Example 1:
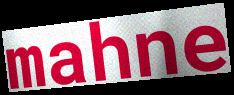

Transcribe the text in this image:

mahne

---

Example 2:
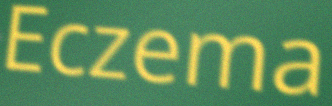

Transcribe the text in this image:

Eczema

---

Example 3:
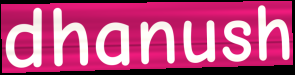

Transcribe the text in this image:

dhanush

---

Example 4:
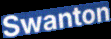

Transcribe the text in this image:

Swanton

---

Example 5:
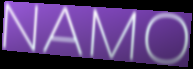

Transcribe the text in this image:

NAMO